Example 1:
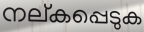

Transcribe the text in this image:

നല്കപ്പെടുക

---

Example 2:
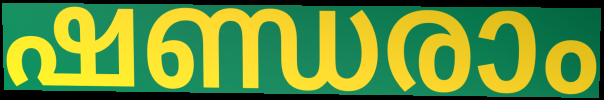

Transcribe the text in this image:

ഷണ്ഡരാം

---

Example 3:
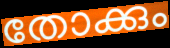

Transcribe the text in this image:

തോക്കും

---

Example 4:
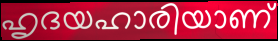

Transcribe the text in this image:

ഹൃദയഹാരിയാണ്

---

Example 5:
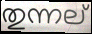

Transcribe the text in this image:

തുന്നല്